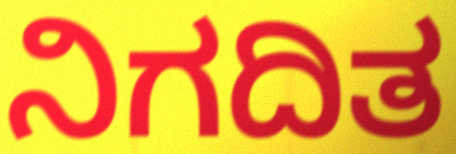
ನಿಗದಿತ